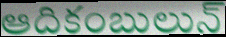
ఆదికంబులున్